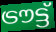
ട്രൗട്ട്